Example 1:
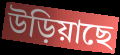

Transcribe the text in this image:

উড়িয়াছে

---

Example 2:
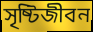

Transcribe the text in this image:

সৃষ্টিজীবন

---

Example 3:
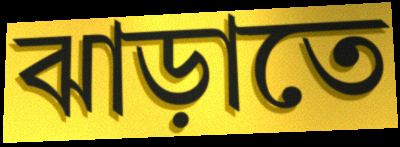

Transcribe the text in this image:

ঝাড়াতে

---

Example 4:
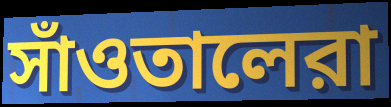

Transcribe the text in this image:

সাঁওতালেরা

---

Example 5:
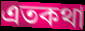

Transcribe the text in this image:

এতকথা